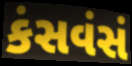
કંસવંસં